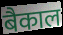
बैकाल